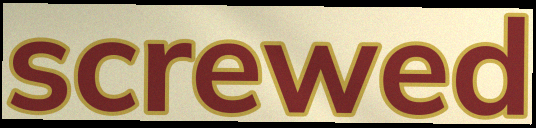
screwed